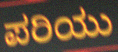
ಪರಿಯು